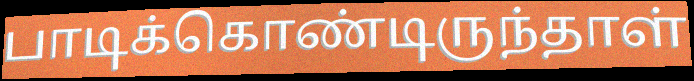
பாடிக்கொண்டிருந்தாள்